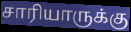
சாரியாருக்கு